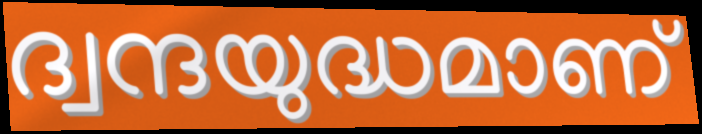
ദ്വന്ദയുദ്ധമാണ്